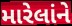
મારેલાંને